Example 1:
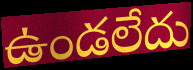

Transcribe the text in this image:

ఉండలేదు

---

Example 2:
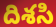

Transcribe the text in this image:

దిశసి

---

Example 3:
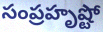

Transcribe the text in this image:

సంప్రహృష్టో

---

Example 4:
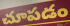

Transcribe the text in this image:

చూపడం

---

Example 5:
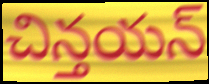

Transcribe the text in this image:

చిన్తయన్